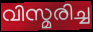
വിസ്മരിച്ച